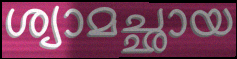
ശ്യാമച്ഛായ